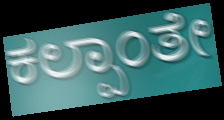
ಕಲ್ಪಾಂತೇ